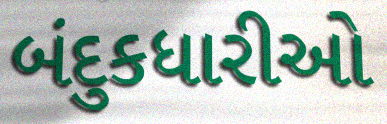
બંદુકધારીઓ